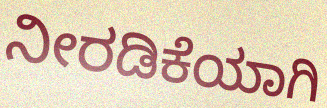
ನೀರಡಿಕೆಯಾಗಿ